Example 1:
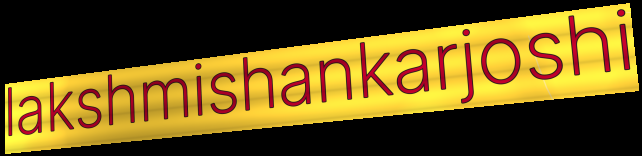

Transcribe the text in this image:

lakshmishankarjoshi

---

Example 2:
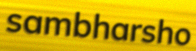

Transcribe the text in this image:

sambharsho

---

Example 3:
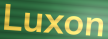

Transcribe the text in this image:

Luxon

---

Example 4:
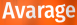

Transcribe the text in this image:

Avarage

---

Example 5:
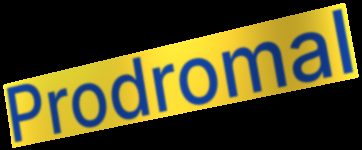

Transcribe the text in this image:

Prodromal